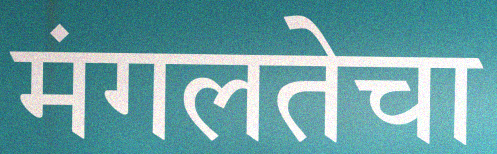
मंगलतेचा